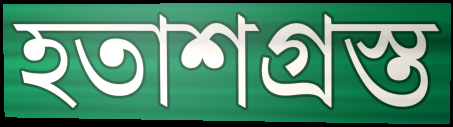
হতাশগ্ৰস্ত